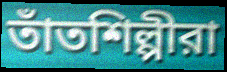
তাঁতশিল্পীরা